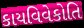
કાયવિવેકોતિ